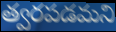
త్వరపడమని